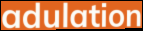
adulation